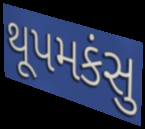
થૂપમકંસુ